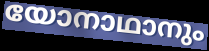
യോനാഥാനും